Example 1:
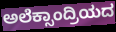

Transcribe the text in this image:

ಅಲೆಕ್ಸಾಂದ್ರಿಯದ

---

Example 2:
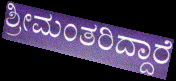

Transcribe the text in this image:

ಶ್ರೀಮಂತರಿದ್ದಾರೆ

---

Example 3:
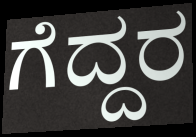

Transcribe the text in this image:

ಗೆದ್ದರ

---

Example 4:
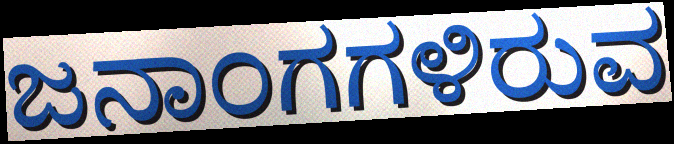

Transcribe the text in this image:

ಜನಾಂಗಗಳಿರುವ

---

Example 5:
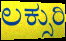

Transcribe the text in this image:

ಲಕ್ಸುರಿ